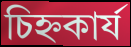
চিহ্নকার্য